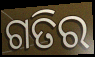
ଗତିର